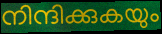
നിന്ദിക്കുകയും